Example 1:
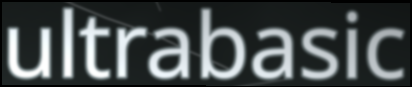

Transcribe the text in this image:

ultrabasic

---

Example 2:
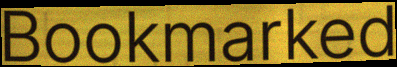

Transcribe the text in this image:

Bookmarked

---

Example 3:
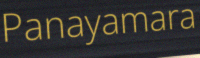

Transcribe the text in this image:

Panayamara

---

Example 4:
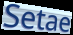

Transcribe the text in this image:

Setae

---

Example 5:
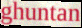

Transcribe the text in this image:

ghuntan